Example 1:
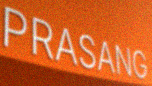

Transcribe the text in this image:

PRASANG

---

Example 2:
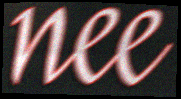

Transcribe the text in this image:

nee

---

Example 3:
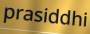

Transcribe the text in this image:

prasiddhi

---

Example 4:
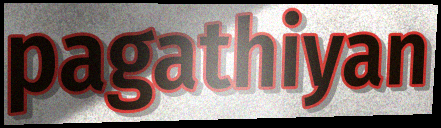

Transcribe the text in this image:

pagathiyan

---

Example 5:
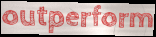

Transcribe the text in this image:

outperform